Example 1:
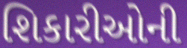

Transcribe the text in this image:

શિકારીઓની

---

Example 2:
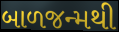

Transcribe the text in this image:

બાળજન્મથી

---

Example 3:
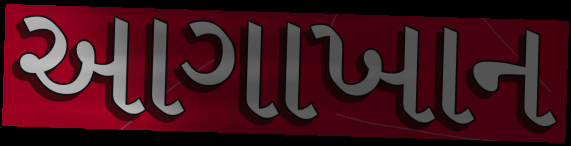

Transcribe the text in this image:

આગાખાન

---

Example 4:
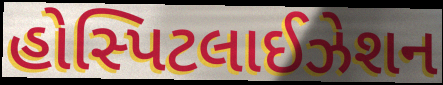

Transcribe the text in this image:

હોસ્પિટલાઈઝેશન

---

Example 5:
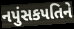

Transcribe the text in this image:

નપુંસકપતિને